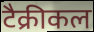
टैक्रीकल